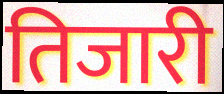
तिजारी